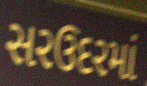
સરઉદરમાં